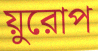
য়ুরোপ